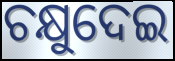
ଚକ୍ଷୁଦେଇ